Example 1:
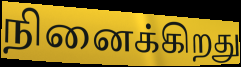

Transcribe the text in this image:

நினைக்கிறது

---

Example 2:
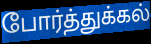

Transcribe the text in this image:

போர்த்துக்கல்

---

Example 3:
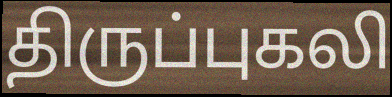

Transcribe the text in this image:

திருப்புகலி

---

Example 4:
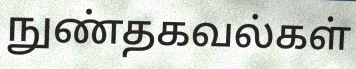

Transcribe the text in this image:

நுண்தகவல்கள்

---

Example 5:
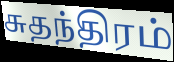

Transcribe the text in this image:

சுதந்திரம்